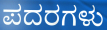
ಪದರಗಳು